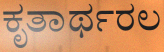
ಕೃತಾರ್ಥರಲ